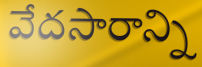
వేదసారాన్ని